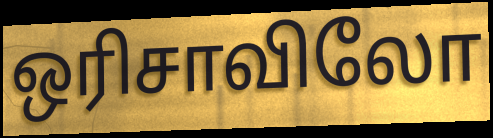
ஒரிசாவிலோ